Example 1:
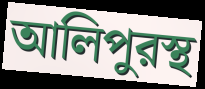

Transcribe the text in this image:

আলিপুরস্থ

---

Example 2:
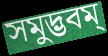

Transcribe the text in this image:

সমুদ্ভবম্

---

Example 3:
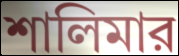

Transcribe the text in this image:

শালিমার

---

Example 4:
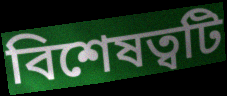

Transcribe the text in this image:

বিশেষত্বটি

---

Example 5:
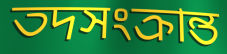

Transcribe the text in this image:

তদসংক্রান্ত